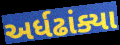
અર્ધઢાંક્યા